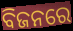
ବିଜନରେ